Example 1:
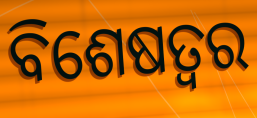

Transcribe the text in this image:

ବିଶେଷତ୍ବର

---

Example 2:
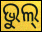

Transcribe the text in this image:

ଭୁଲ୍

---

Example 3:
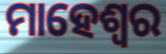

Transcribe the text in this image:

ମାହେଶ୍ଵର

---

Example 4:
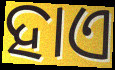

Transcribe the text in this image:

ହାଏ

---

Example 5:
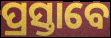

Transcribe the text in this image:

ପ୍ରସ୍ତାବେ